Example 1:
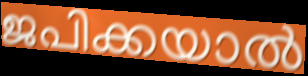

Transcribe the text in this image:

ജപിക്കയാൽ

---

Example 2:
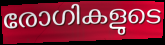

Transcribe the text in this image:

രോഗികളുടെ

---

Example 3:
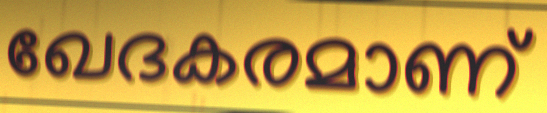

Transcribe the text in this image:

ഖേദകരമാണ്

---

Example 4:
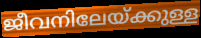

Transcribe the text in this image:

ജീവനിലേയ്ക്കുള്ള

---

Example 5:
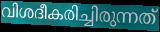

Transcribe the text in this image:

വിശദീകരിച്ചിരുന്നത്